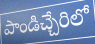
పాండిచ్చేరిలో